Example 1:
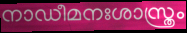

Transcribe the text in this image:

നാഡീമനഃശാസ്ത്രം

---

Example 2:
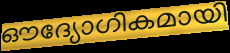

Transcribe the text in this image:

ഔദ്യോഗികമായി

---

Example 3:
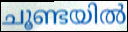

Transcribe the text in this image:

ചൂണ്ടയിൽ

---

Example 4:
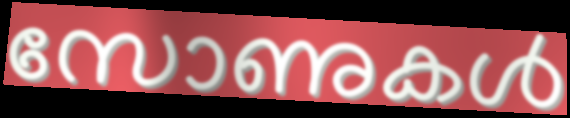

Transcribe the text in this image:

സോണുകൾ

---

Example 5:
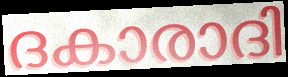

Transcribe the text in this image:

ദകാരാദി